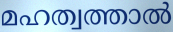
മഹത്വത്താൽ